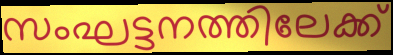
സംഘട്ടനത്തിലേക്ക്